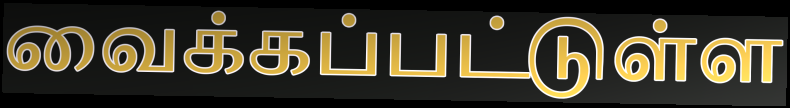
வைக்கப்பட்டுள்ள